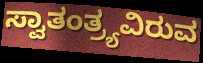
ಸ್ವಾತಂತ್ರ್ಯವಿರುವ